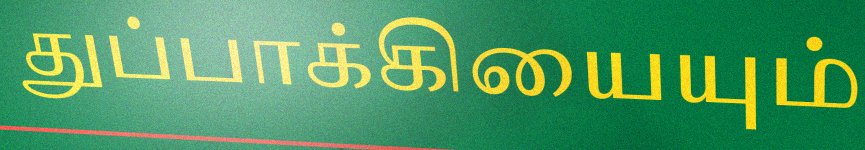
துப்பாக்கியையும்